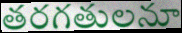
తరగతులనూ